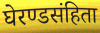
घेरण्डसंहिता